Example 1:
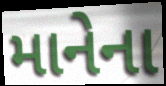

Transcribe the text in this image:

માનેના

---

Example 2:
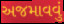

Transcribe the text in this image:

અજમાવવું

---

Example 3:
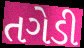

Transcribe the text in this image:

તગેડી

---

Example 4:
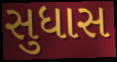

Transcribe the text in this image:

સુધાસ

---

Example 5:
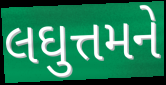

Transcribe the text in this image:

લઘુત્તમને